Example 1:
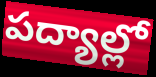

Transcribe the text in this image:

పద్యాల్లో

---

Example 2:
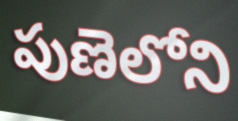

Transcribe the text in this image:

పుణెలోని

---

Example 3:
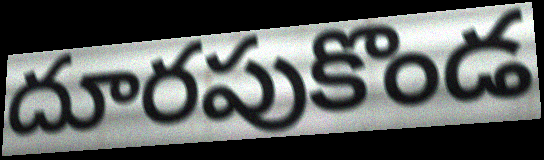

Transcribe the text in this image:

దూరపుకొండ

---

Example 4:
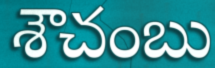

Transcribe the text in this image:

శౌచంబు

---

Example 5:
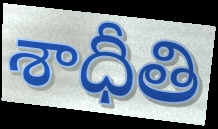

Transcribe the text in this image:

శాధీతి